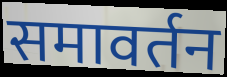
समावर्तन